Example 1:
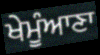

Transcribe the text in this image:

ਖੇਮੂੰਆਣਾ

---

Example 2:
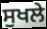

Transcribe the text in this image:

ਸੁਖਲੇ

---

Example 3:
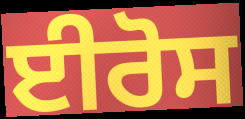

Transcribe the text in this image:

ਈਰੋਸ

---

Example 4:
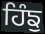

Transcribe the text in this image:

ਹਿੰਙੁ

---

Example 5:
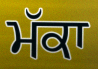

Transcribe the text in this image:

ਮੱਕਾ